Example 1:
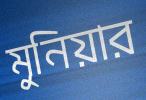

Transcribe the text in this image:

মুনিয়ার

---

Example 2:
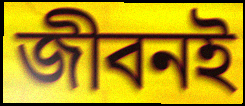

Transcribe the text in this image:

জীবনই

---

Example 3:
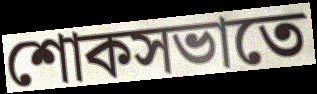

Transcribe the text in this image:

শোকসভাতে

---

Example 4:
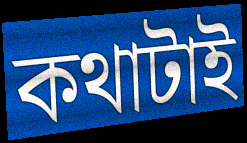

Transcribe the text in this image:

কথাটাই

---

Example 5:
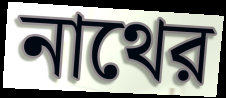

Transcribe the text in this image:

নাথের